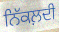
ਨਿੱਕਲ਼ਦੀ